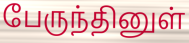
பேருந்தினுள்